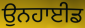
ਉਨਹਾਈਡ